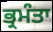
ਭ੍ਰਮੰਤਾ